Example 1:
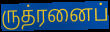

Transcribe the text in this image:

ருத்ரனைப்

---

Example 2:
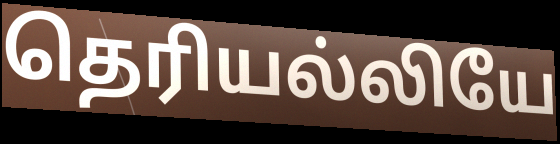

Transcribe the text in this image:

தெரியல்லியே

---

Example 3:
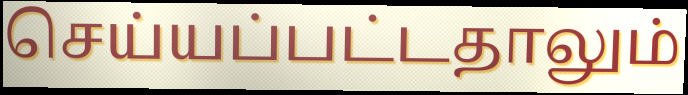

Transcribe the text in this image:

செய்யப்பட்டதாலும்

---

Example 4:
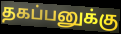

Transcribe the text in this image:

தகப்பனுக்கு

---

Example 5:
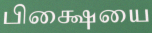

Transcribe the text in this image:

பிக்ஷையை